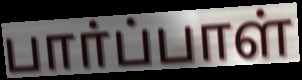
பார்ப்பாள்